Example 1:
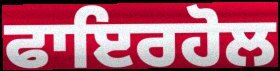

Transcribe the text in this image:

ਫਾਇਰਹੋਲ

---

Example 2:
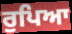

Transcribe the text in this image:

ਰੁਪਿਆ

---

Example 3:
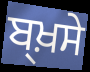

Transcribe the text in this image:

ਬ੍ਖ਼ਸੇ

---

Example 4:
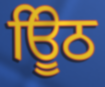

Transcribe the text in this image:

ਊਿਠ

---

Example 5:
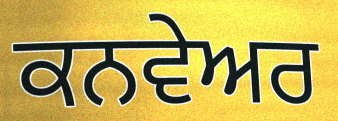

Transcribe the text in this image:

ਕਨਵੇਅਰ